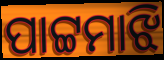
ପାଟ୍ଟମାଝି